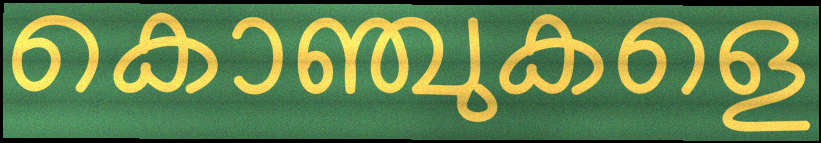
കൊഞ്ചുകളെ